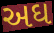
અઘ